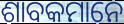
ଶାବକମାନେ